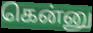
கென்னு